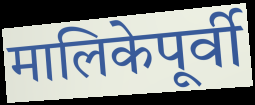
मालिकेपूर्वी